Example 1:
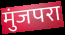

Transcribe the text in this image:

मुंजपरा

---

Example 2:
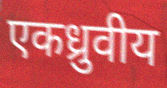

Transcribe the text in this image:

एकध्रुवीय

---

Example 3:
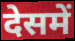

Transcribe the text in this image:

देसमें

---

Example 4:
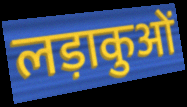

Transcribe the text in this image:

लड़ाकुओं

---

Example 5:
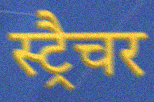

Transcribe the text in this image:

स्ट्रैचर